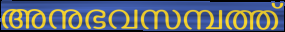
അനുഭവസമ്പത്ത്